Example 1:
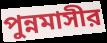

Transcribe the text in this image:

পুন্নমাসীর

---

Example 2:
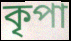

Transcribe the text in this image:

কৃপা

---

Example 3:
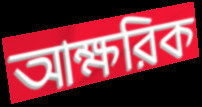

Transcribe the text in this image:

আক্ষরিক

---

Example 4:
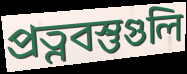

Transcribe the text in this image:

প্রত্নবস্তুগুলি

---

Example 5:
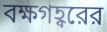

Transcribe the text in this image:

বক্ষগহ্বরের